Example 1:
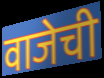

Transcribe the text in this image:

वाजेची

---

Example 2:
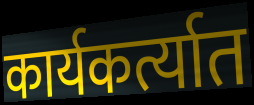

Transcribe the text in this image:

कार्यकर्त्यात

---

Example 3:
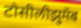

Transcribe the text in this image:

टोसीलीझुमॅब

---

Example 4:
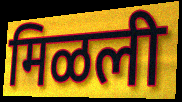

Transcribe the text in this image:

मिळली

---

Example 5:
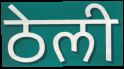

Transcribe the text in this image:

ठेली